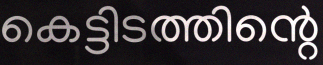
കെട്ടിടത്തിന്റെ